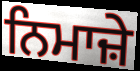
ਨਿਮਾਜ਼ੇ